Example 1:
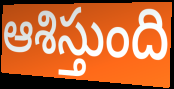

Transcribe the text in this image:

ఆశిస్తుంది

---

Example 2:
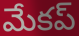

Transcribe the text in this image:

మేకప్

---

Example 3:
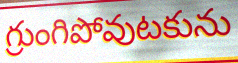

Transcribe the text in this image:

గ్రుంగిపోవుటకును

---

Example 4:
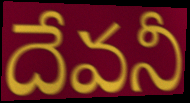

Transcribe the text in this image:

దేవనీ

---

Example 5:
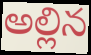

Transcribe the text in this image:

అల్లిన